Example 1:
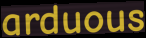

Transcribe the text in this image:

arduous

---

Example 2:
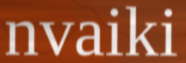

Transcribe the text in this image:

nvaiki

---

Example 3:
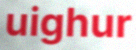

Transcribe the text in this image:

uighur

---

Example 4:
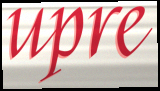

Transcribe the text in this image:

upre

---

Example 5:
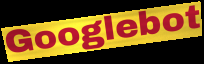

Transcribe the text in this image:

Googlebot